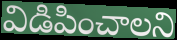
విడిపించాలని